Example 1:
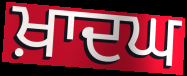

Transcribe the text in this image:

ਖ਼ਾਦਘ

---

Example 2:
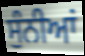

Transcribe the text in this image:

ਸੁੰਨੀਆਂ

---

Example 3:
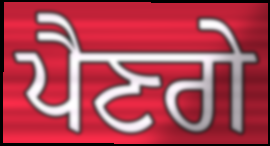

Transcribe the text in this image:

ਪੈਣਗੇ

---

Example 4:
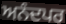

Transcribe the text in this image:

ਅਨੰਦਪਰ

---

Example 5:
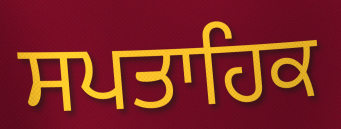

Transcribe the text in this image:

ਸਪਤਾਹਿਕ